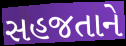
સહજતાને